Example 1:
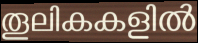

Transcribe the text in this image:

തൂലികകളിൽ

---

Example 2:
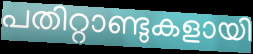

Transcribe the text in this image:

പതിറ്റാണ്ടുകളായി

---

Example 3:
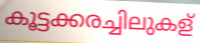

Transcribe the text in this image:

കൂട്ടക്കരച്ചിലുകള്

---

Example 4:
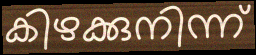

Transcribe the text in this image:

കിഴക്കുനിന്ന്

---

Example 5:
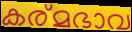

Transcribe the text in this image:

കര്മഭാവ